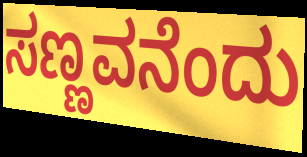
ಸಣ್ಣವನೆಂದು